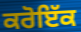
ਕਰੋਇੱਕ